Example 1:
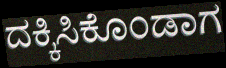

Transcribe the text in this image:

ದಕ್ಕಿಸಿಕೊಂಡಾಗ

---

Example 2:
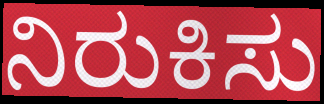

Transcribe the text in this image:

ನಿರುಕಿಸು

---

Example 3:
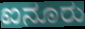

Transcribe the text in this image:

ಐನೂರು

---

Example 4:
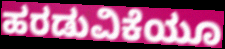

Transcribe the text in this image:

ಹರಡುವಿಕೆಯೂ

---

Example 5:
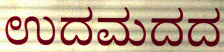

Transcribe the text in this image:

ಉದಮದದ